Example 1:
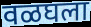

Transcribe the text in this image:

वळघला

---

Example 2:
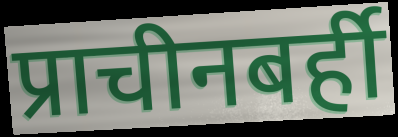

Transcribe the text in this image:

प्राचीनबर्ही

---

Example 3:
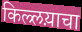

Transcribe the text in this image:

किल्लय़ाचा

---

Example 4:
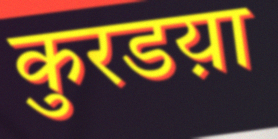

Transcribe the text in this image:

कुरडय़ा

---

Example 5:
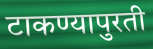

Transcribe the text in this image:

टाकण्यापुरती